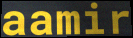
aamir